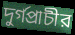
দুর্গপ্রাচীর